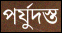
পর্যুদস্ত